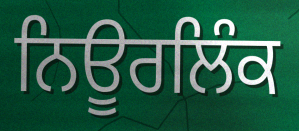
ਨਿਊਰਲਿੰਕ